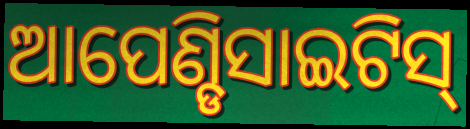
ଆପେଣ୍ଡିସାଇଟିସ୍